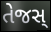
તેજસ્